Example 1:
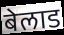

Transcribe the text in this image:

बेलाड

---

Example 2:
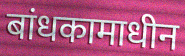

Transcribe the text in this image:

बांधकामाधीन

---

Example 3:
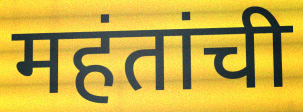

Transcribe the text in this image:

महंतांची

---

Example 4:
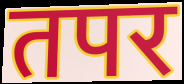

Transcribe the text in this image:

तपर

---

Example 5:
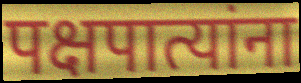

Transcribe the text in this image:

पक्षपात्यांना